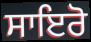
ਸਾਇਰੋ